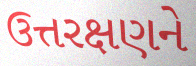
ઉત્તરક્ષણને